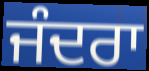
ਜੰਦਰਾ